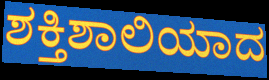
ಶಕ್ತಿಶಾಲಿಯಾದ